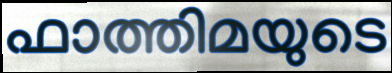
ഫാത്തിമയുടെ